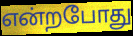
என்றபோது